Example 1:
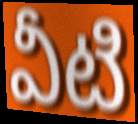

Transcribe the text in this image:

వీటి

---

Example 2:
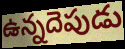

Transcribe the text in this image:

ఉన్నదెపుడు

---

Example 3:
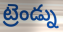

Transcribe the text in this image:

ట్రెండ్ను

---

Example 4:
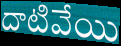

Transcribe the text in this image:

దాటివేయి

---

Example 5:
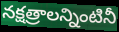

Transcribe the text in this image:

నక్షత్రాలన్నింటినీ